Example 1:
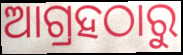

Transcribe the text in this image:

ଆଗ୍ରହଠାରୁ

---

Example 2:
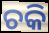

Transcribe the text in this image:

ଚକି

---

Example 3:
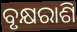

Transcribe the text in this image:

ବୃକ୍ଷରାଶି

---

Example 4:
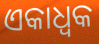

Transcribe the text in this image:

ଏକାଧ୍ଵକ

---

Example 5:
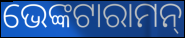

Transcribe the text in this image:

ଭେଙ୍କଟାରାମନ୍